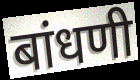
बांधणी